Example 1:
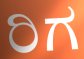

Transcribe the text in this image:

ರಿಗ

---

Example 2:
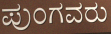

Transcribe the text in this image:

ಪುಂಗವರು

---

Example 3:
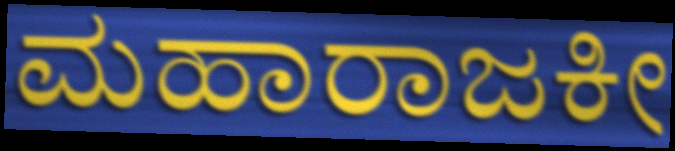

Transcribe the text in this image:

ಮಹಾರಾಜಕೀ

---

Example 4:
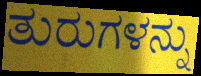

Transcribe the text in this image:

ತುರುಗಳನ್ನು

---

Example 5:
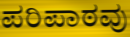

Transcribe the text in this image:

ಪರಿಪಾಠವು